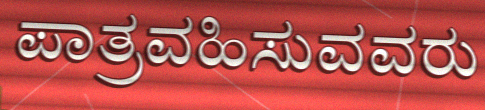
ಪಾತ್ರವಹಿಸುವವರು